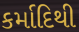
કર્માદિથી